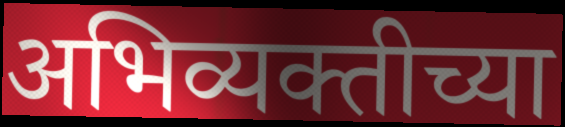
अभिव्यक्तीच्या